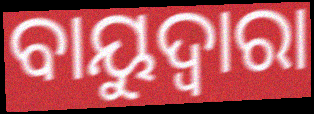
ବାୟୁଦ୍ୱାରା